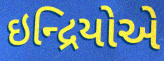
ઇન્દ્રિયોએ